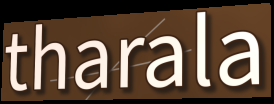
tharala